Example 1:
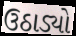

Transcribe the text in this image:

ઉઠાડ્યો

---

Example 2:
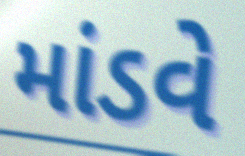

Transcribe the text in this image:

માંડવે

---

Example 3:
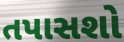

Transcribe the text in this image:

તપાસશો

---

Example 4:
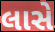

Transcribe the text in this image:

લાસે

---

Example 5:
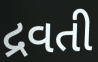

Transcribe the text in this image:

દ્રવતી